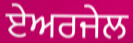
ਏਅਰਜੇਲ